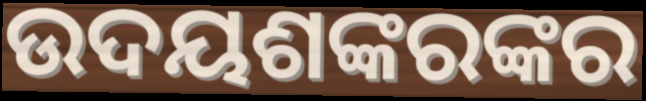
ଉଦୟଶଙ୍କରଙ୍କର